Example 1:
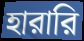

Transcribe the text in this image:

হারারি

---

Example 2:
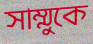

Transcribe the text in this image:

সাম্মুকে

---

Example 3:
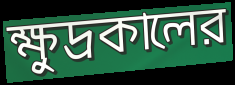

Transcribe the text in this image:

ক্ষুদ্রকালের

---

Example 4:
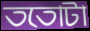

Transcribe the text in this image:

ততোটা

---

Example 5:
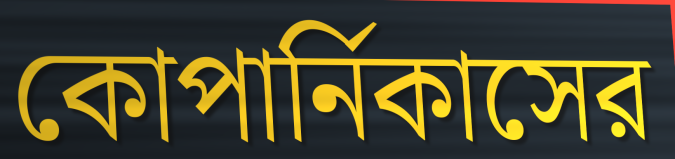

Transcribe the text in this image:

কোপার্নিকাসের